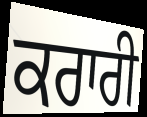
ਕਰਾਰੀ